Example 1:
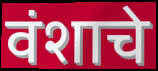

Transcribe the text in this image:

वंशाचे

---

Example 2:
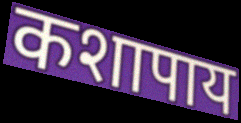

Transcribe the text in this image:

कशापाय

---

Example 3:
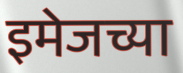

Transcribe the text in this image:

इमेजच्या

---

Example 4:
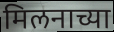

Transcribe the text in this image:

मिलनाच्या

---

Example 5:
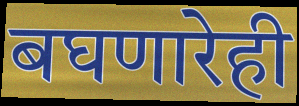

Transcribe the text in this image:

बघणारेही